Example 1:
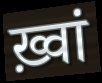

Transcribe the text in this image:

ख़्वां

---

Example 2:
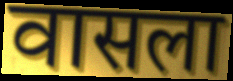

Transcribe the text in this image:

वासला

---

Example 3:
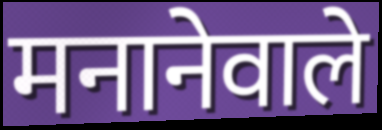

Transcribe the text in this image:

मनानेवाले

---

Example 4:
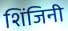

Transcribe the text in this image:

शिंजिनी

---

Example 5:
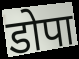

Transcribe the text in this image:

डोपा